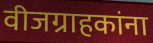
वीजग्राहकांना